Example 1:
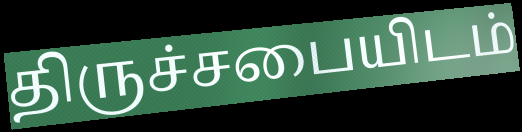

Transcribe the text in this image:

திருச்சபையிடம்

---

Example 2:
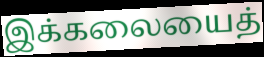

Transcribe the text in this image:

இக்கலையைத்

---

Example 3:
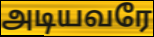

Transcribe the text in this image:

அடியவரே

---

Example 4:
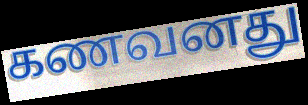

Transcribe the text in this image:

கணவனது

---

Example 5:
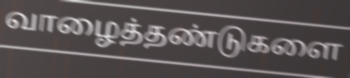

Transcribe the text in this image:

வாழைத்தண்டுகளை